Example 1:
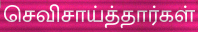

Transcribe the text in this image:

செவிசாய்த்தார்கள்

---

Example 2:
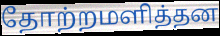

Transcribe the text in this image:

தோற்றமளித்தன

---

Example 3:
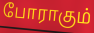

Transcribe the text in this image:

போராகும்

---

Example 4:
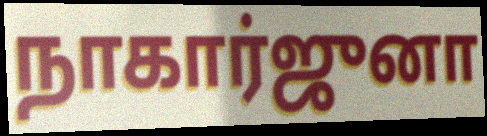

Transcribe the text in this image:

நாகார்ஜுனா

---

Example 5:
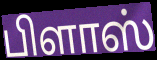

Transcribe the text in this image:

பிளாஸ்